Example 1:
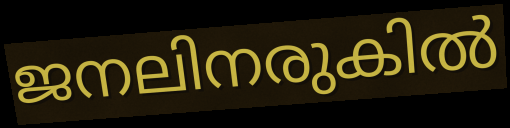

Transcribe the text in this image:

ജനലിനരുകിൽ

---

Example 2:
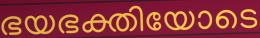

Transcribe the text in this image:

ഭയഭക്തിയോടെ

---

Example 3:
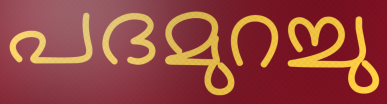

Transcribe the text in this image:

പദമുറച്ചു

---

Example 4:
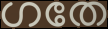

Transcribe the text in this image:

ഗതേ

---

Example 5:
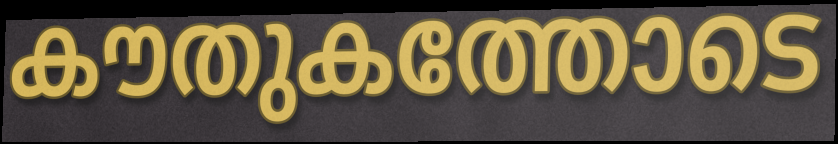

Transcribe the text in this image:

കൗതുകത്തോടെ